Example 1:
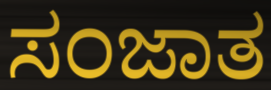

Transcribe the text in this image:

ಸಂಜಾತ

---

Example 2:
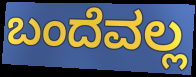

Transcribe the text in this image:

ಬಂದೆವಲ್ಲ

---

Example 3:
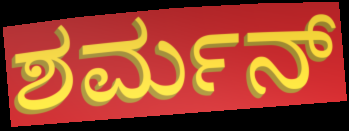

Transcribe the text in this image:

ಶರ್ಮನ್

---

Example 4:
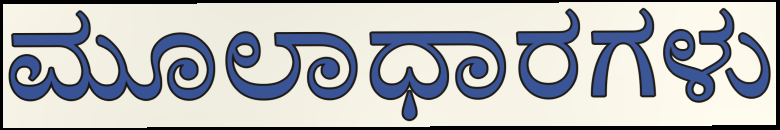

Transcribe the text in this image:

ಮೂಲಾಧಾರಗಳು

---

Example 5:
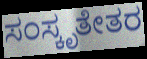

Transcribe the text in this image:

ಸಂಸ್ಕೃತೇತರ